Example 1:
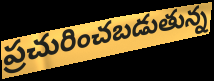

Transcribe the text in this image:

ప్రచురించబడుతున్న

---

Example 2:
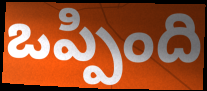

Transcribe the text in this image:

ఒప్పింది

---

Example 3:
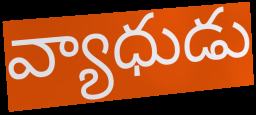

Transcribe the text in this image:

వ్యాధుడు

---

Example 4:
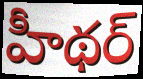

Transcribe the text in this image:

హీథర్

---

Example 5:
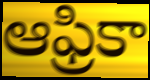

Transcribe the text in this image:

ఆఫ్రికా